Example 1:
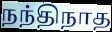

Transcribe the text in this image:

நந்திநாத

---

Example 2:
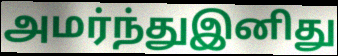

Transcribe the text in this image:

அமர்ந்துஇனிது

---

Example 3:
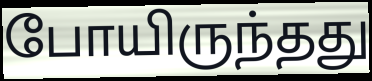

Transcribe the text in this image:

போயிருந்தது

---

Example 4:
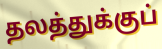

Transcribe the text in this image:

தலத்துக்குப்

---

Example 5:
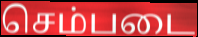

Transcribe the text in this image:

செம்படை